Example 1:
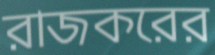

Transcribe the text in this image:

রাজকরের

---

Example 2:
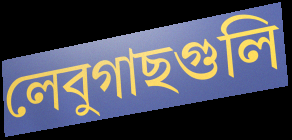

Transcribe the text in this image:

লেবুগাছগুলি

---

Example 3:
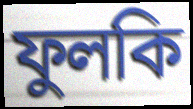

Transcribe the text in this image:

ফুলকি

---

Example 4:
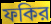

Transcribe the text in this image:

ফকির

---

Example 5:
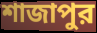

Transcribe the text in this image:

শাজাপুর